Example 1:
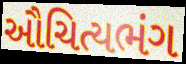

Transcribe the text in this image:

ઔચિત્યભંગ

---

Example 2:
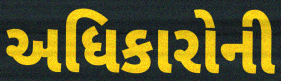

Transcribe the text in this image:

અધિકારોની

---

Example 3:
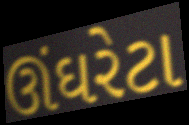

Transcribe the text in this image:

ઊંઘરેટા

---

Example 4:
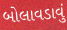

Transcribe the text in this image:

બોલાવડાવું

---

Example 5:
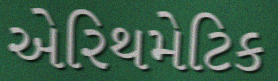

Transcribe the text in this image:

એરિથમેટિક